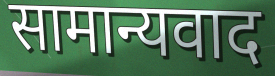
सामान्यवाद